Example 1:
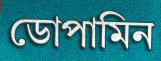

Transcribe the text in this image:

ডোপামিন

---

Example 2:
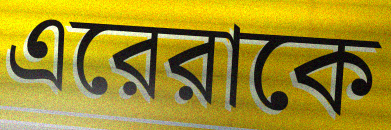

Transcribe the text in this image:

এরেরাকে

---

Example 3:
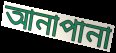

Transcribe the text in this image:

আনাপানা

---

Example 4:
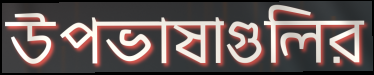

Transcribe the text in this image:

উপভাষাগুলির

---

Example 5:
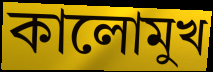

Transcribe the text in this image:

কালোমুখ